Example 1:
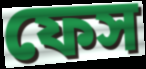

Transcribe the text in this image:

ফেস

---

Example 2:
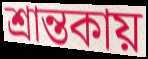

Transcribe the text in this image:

শ্রান্তকায়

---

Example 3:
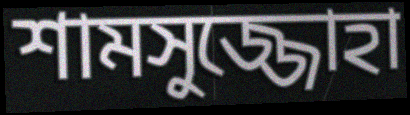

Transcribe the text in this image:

শামসুজ্জোহা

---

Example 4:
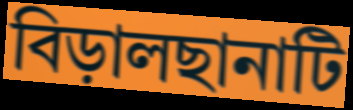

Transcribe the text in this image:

বিড়ালছানাটি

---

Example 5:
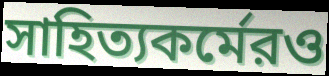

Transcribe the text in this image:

সাহিত্যকর্মেরও